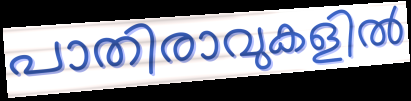
പാതിരാവുകളിൽ